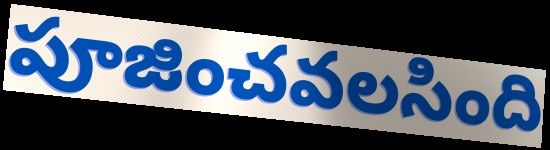
పూజించవలసింది